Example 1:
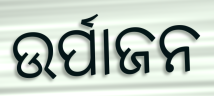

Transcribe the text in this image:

ଉର୍ପାଜନ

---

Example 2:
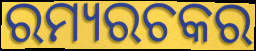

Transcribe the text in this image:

ରମ୍ୟରଚକର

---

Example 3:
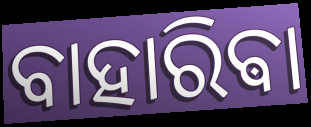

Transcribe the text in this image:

ବାହାରିଵା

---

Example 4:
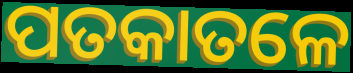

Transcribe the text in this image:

ପତକାତଳେ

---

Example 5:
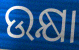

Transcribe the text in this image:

ଉକ୍ଷା